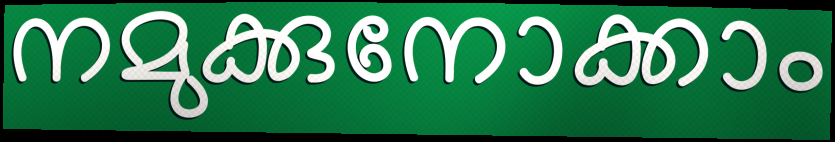
നമുക്കുനോക്കാം